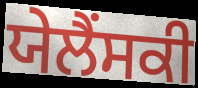
ਯੇਲੈਂਸਕੀ